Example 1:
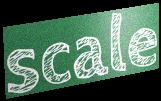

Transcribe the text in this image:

scale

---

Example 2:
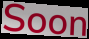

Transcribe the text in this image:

Soon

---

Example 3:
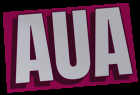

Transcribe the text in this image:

AUA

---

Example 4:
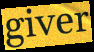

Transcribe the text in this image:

giver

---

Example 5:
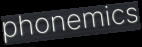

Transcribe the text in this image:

phonemics